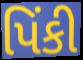
પિંકી